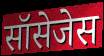
सॉसेजेस